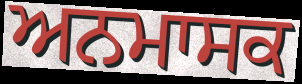
ਅਨਮਾਸਕ